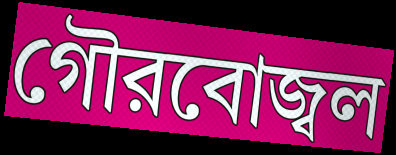
গৌরবোজ্বল